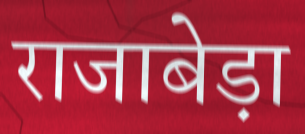
राजाबेड़ा